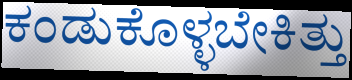
ಕಂಡುಕೊಳ್ಳಬೇಕಿತ್ತು